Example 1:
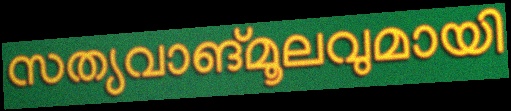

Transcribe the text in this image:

സത്യവാങ്മൂലവുമായി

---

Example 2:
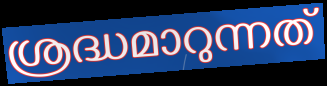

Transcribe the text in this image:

ശ്രദ്ധമാറുന്നത്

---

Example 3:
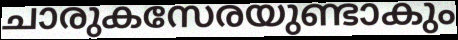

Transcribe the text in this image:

ചാരുകസേരയുണ്ടാകും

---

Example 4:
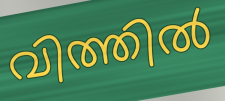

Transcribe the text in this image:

വിത്തിൽ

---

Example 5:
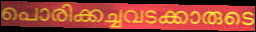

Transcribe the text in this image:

പൊരിക്കച്ചവടക്കാരുടെ